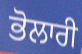
ਭੋਲਾਰੀ